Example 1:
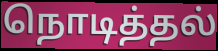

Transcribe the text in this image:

நொடித்தல்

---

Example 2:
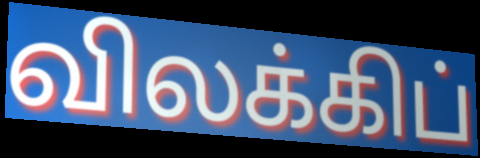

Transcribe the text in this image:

விலக்கிப்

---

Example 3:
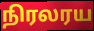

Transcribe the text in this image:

நிரலரய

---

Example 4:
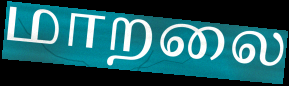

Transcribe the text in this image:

மாறலை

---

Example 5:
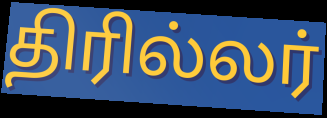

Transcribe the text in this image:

திரில்லர்